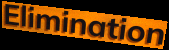
Elimination